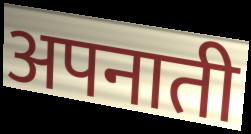
अपनाती